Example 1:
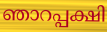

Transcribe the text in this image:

ഞാറപ്പക്ഷി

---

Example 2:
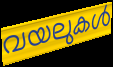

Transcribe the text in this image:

വയലുകൾ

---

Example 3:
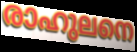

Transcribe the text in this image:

രാഹുലനെ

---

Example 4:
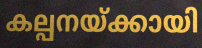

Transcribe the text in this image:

കല്പനയ്ക്കായി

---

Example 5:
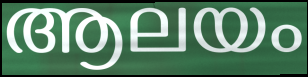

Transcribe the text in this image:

ആലയം